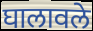
घालावले